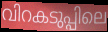
വിറകടുപ്പിലെ